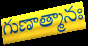
గుణాత్మానః